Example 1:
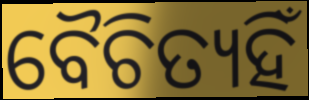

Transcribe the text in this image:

ବୈଚିତ୍ୟହିଁ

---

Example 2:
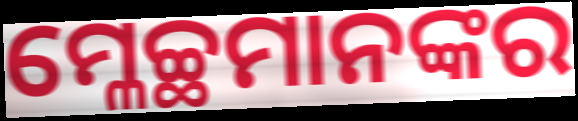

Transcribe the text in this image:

ମ୍ଳେଚ୍ଛମାନଙ୍କର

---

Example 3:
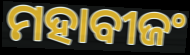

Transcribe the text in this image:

ମହାବୀଜଂ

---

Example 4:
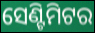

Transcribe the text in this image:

ସେଣ୍ଟିମିଟର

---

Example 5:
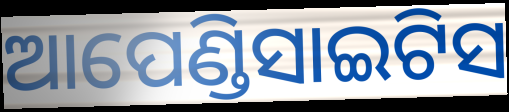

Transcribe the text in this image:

ଆପେଣ୍ଡିସାଇଟିସ